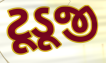
ટૂડૂજી